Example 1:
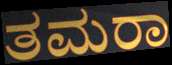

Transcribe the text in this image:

ತಮರಾ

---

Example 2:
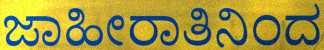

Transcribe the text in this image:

ಜಾಹೀರಾತಿನಿಂದ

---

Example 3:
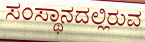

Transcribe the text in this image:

ಸಂಸ್ಥಾನದಲ್ಲಿರುವ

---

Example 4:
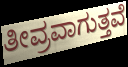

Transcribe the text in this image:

ತೀವ್ರವಾಗುತ್ತವೆ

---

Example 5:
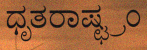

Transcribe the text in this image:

ಧೃತರಾಷ್ಟ್ರಂ